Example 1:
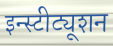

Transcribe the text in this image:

इन्स्टीट्यूशन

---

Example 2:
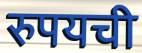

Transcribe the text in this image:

रुपयची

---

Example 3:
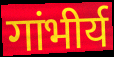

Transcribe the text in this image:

गांभीर्य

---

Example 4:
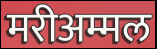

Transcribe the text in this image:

मरीअम्मल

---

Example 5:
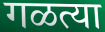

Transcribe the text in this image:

गळत्या